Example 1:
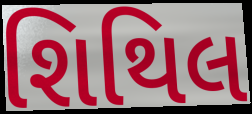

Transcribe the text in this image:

શિથિલ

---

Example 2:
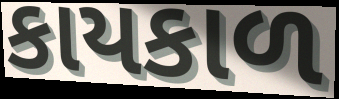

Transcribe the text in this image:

કાયકાળ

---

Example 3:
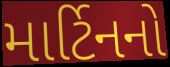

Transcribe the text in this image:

માર્ટિનનો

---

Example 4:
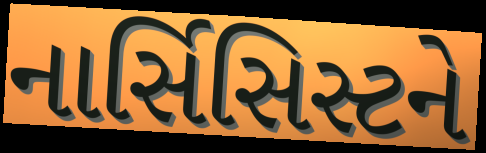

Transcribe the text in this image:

નાર્સિસિસ્ટને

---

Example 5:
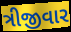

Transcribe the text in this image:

ત્રીજીવાર